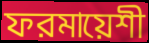
ফরমায়েশী